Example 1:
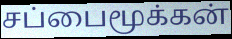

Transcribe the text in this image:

சப்பைமூக்கன்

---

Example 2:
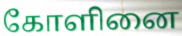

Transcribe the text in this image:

கோளினை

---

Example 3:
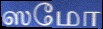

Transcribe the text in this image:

ஸமோ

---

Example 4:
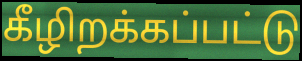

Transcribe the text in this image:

கீழிறக்கப்பட்டு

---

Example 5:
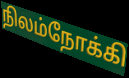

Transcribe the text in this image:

நிலம்நோக்கி